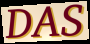
DAS